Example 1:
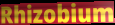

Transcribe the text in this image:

Rhizobium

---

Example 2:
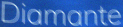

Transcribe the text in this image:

Diamante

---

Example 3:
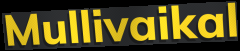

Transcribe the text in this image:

Mullivaikal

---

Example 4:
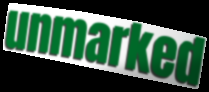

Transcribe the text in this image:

unmarked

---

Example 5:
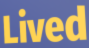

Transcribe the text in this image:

Lived